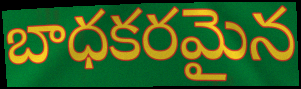
బాధకరమైన